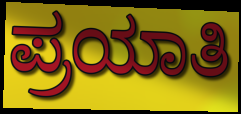
ಪ್ರಯಾತಿ